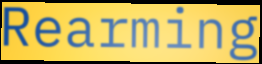
Rearming